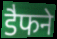
डैफने